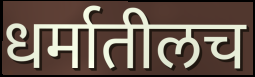
धर्मातीलच